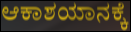
ಆಕಾಶಯಾನಕ್ಕೆ